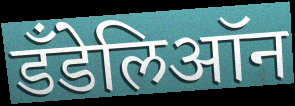
डँडेलिऑन